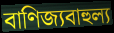
বাণিজ্যবাহুল্য